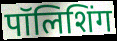
पॉलिशिंग